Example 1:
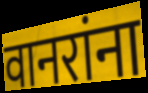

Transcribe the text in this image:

वानरांना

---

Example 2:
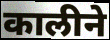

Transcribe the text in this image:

कालीने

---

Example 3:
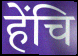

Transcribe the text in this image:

हेंचि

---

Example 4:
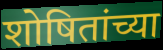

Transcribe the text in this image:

शोषितांच्या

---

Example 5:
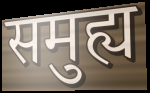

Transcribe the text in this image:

समुह्य